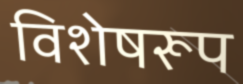
विशेषरूप